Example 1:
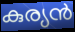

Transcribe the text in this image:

കുര്യൻ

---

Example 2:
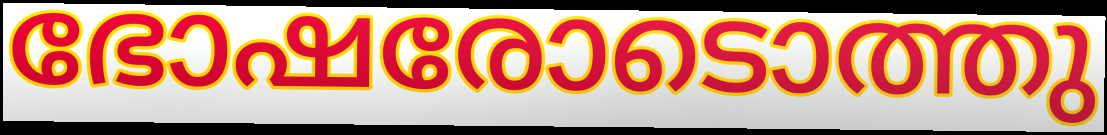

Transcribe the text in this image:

ഭോഷരോടൊത്തു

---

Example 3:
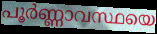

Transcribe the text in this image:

പൂർണ്ണാവസ്ഥയെ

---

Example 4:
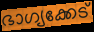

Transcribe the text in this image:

ഭാഗ്യക്കേട്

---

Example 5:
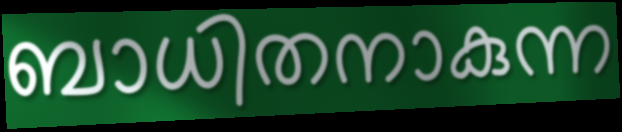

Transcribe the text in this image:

ബാധിതനാകുന്ന